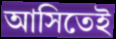
আসিতেই